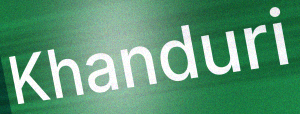
Khanduri